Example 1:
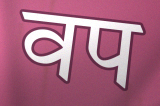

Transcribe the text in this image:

वप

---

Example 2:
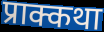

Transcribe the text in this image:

प्राक्कथा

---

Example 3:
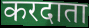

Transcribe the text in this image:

करदाता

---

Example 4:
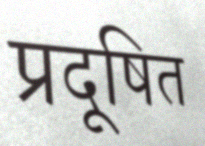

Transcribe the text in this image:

प्रदूषित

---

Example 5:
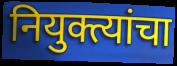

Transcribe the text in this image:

नियुक्त्यांचा